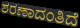
ಶರಣಾದಂತಿದೆ